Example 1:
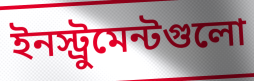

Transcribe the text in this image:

ইনস্ট্রুমেন্টগুলো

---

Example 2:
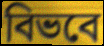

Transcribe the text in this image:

বিভবে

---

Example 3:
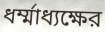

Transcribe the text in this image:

ধর্ম্মাধ্যক্ষের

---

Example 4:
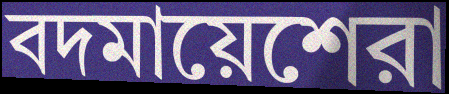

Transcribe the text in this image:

বদমায়েশেরা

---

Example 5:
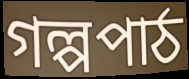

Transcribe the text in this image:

গল্পপাঠ